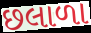
છલાળા